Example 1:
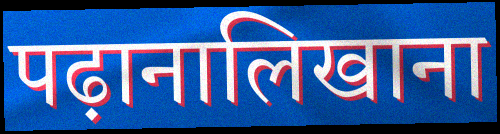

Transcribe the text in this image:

पढ़ानालिखाना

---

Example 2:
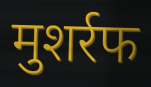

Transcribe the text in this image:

मुशर्रफ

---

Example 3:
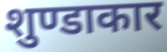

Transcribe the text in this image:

शुण्डाकार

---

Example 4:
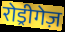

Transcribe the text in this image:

रोड्रीगेज़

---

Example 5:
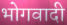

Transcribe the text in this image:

भोगवादी